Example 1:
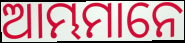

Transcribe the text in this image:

ଆମ୍ଭମାନେ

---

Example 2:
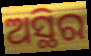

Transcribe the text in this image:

ଅସ୍ଥିର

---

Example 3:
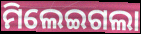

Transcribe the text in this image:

ମିଲେଇଗଲା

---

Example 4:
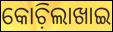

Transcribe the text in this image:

କୋଚ଼ିଲାଖାଇ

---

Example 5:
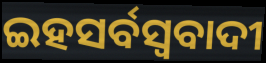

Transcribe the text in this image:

ଇହସର୍ବସ୍ୱବାଦୀ